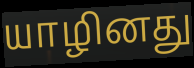
யாழினது